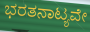
ಭರತನಾಟ್ಯವೇ